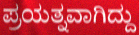
ಪ್ರಯತ್ನವಾಗಿದ್ದು